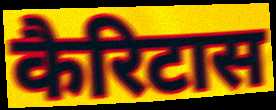
कैरिटास